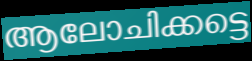
ആലോചിക്കട്ടെ